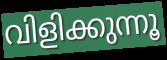
വിളിക്കുന്നൂ